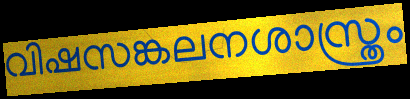
വിഷസങ്കലനശാസ്ത്രം